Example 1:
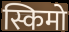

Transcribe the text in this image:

स्किमो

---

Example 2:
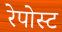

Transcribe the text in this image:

रेपोस्ट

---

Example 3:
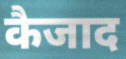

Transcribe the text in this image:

कैजाद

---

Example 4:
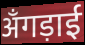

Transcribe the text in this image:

अँगड़ाई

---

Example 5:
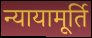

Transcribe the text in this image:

न्यायामूर्ति